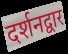
दर्शनद्वार